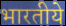
भारतीये